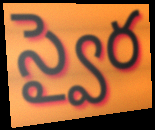
స్వైర